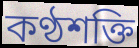
কণ্ঠশক্তি